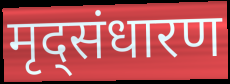
मृद्संधारण